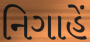
નિગાહેં